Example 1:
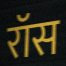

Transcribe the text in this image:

रॉस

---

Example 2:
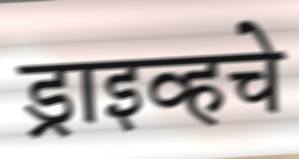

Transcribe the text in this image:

ड्राइव्हचे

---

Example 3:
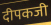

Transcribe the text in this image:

दीपकजी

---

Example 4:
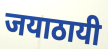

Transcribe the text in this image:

जयाठायी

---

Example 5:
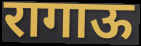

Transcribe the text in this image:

रागाऊ